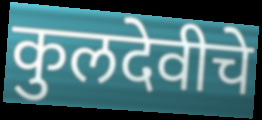
कुलदेवीचे